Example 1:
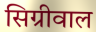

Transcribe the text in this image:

सिग्रीवाल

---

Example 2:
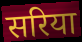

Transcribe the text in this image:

सरिया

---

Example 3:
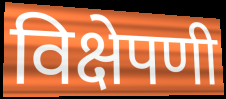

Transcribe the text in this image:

विक्षेपणी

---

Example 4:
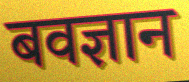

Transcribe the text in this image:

बवज्ञान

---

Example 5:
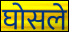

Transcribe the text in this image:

घोसले